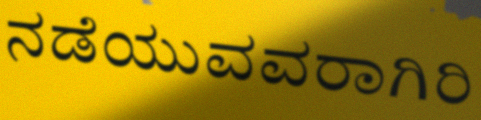
ನಡೆಯುವವರಾಗಿರಿ